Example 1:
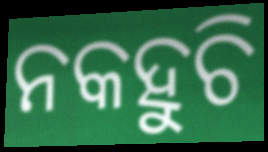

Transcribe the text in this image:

ନକହୁଚି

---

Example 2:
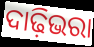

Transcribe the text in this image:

ଦାଢ଼ିଭରା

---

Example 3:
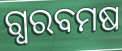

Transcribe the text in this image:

ଗ୍ଧରବମଷ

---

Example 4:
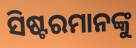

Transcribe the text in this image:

ସିଷ୍ଟରମାନଙ୍କୁ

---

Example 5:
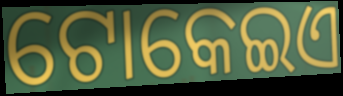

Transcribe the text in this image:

ଟୋକେଇଏ